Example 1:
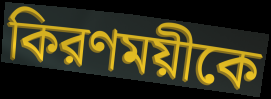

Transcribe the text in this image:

কিরণময়ীকে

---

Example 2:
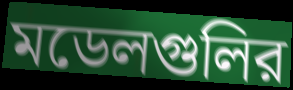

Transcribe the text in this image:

মডেলগুলির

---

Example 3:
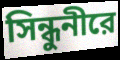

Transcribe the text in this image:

সিন্ধুনীরে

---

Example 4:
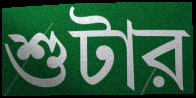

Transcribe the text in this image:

শুটার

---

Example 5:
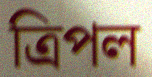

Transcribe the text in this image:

ত্রিপল